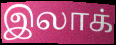
இலாக்